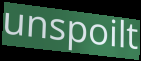
unspoilt